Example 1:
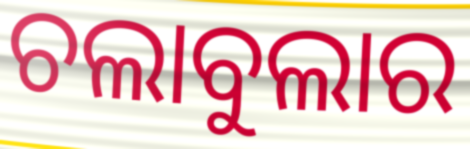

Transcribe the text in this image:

ଚଲାବୁଲାର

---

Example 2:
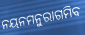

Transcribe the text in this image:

ନୟନମନୁରାଗମିବ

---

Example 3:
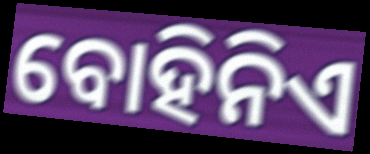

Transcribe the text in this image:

ବୋହିନିଏ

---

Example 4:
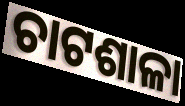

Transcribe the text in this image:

ଚାଟଶାଳା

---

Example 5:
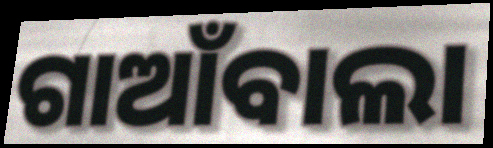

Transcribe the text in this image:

ଗାଆଁବାଲା